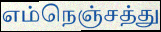
எம்நெஞ்சத்து